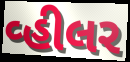
વ્હીલર